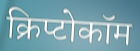
क्रिप्टोकॉम